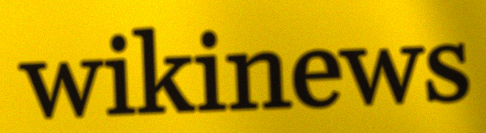
wikinews